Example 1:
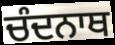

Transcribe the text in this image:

ਚੰਦਨਾਥ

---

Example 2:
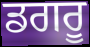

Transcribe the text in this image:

ਡਗਰੂ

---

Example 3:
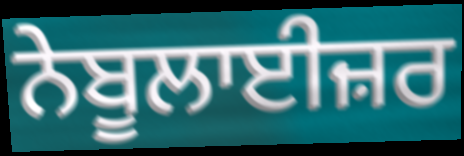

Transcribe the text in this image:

ਨੇਬੂਲਾਈਜ਼ਰ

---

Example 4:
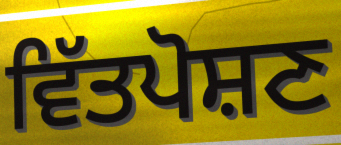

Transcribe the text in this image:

ਵਿੱਤਪੋਸ਼ਣ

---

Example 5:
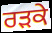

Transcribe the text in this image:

ਰੜਕੇ